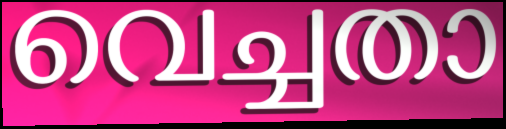
വെച്ചതാ